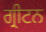
ਗ੍ਰੀਟਨ